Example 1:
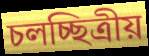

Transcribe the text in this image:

চলচ্ছিত্ৰীয়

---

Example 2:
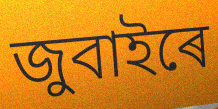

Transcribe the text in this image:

জুবাইৰে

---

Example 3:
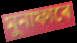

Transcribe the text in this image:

মুনাফাৰে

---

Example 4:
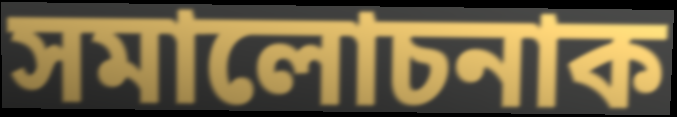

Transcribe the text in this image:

সমালোচনাক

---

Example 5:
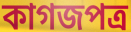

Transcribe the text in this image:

কাগজপত্ৰ